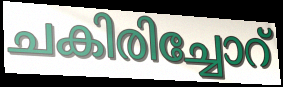
ചകിരിച്ചോറ്